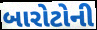
બારોટોની